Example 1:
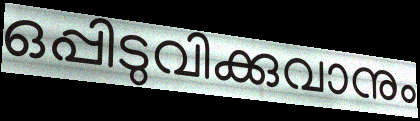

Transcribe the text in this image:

ഒപ്പിടുവിക്കുവാനും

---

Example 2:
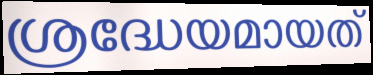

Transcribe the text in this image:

ശ്രദ്ധേയമായത്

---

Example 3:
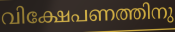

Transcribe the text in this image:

വിക്ഷേപണത്തിനു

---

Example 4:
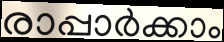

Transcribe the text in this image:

രാപ്പാർക്കാം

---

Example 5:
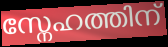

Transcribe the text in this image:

സ്നേഹത്തിന്